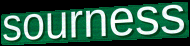
sourness